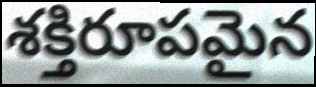
శక్తిరూపమైన